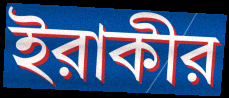
ইরাকীর